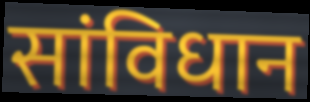
सांविधान